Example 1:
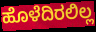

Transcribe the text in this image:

ಹೊಳೆದಿರಲಿಲ್ಲ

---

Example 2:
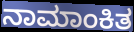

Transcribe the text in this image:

ನಾಮಾಂಕಿತ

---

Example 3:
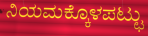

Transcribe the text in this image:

ನಿಯಮಕ್ಕೊಳಪಟ್ಟು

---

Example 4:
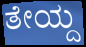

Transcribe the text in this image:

ತೇಯ್ದ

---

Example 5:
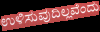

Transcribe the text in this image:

ಉಳಿಸುವುದಿಲ್ಲವೆಂದು